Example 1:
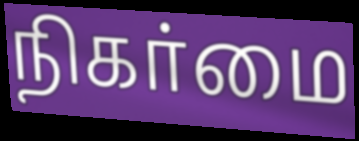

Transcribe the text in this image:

நிகர்மை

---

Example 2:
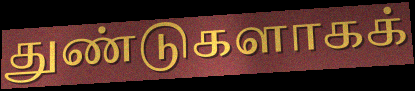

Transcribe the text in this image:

துண்டுகளாகக்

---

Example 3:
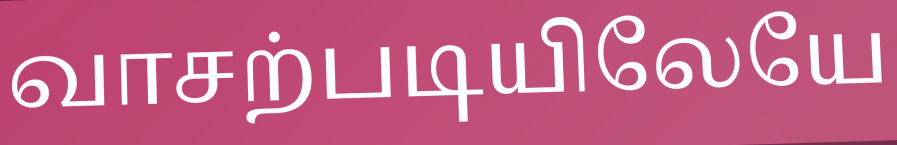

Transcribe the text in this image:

வாசற்படியிலேயே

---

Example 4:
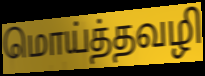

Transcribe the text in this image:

மொய்த்தவழி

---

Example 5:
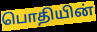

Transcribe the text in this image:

பொதியின்